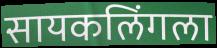
सायकलिंगला